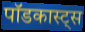
पॉडकास्ट्स